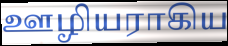
ஊழியராகிய